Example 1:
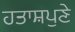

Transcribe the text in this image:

ਹਤਾਸ਼ਪੁਣੇ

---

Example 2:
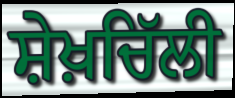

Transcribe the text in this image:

ਸ਼ੇਖ਼ਚਿੱਲੀ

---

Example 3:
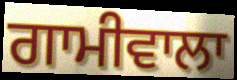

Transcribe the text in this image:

ਗਾਮੀਵਾਲਾ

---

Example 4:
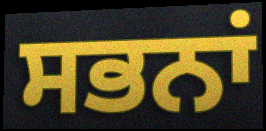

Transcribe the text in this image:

ਸਭਨਾਂ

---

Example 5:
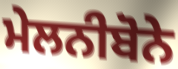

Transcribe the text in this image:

ਮੇਲਨੀਬੋਨੇ